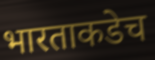
भारताकडेच